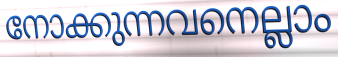
നോക്കുന്നവനെല്ലാം